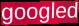
googled